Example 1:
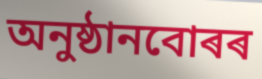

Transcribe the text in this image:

অনুষ্ঠানবোৰৰ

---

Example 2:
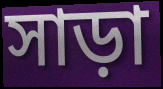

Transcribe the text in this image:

সাড়া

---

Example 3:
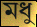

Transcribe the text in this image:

মধু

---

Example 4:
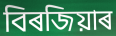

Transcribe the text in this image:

বিৰজিয়াৰ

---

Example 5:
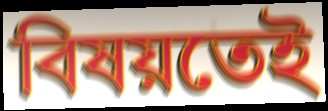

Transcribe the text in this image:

বিষয়তেই